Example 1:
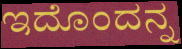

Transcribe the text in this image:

ಇದೊಂದನ್ನ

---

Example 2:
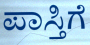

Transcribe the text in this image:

ಪಾಸ್ತಿಗೆ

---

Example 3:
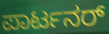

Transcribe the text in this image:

ಪಾರ್ಟನರ್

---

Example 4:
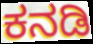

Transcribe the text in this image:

ಕನಡಿ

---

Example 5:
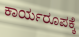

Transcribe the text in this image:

ಕಾರ್ಯರೂಪಕ್ಕೆ